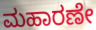
ಮಹಾರಣೇ